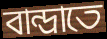
বান্দ্রাতে